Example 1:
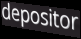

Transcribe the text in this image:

depositor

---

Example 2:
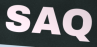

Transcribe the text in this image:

SAQ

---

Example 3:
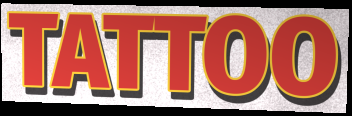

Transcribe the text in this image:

TATTOO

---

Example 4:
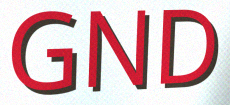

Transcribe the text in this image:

GND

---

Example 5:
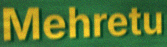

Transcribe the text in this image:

Mehretu